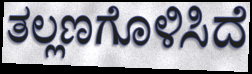
ತಲ್ಲಣಗೊಳಿಸಿದೆ